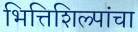
भित्तिशिल्पांचा